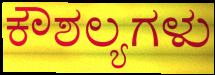
ಕೌಶಲ್ಯಗಳು